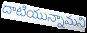
దాటియున్నామని